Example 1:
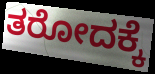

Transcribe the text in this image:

ತರೋದಕ್ಕೆ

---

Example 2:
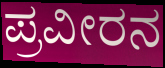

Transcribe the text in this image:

ಪ್ರವೀರನ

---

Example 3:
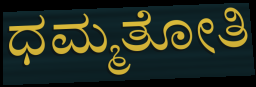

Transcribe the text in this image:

ಧಮ್ಮತೋತಿ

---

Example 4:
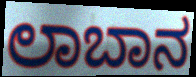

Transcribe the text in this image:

ಲಾಬಾನ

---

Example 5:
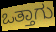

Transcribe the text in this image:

ಒತ್ತಾಗು